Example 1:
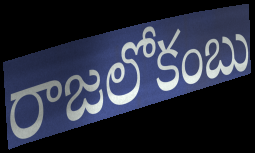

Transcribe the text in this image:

రాజలోకంబు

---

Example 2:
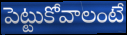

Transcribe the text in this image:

పెట్టుకోవాలంటే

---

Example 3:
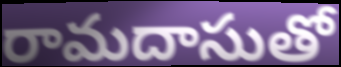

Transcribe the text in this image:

రామదాసుతో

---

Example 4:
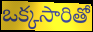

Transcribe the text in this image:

ఒక్కసారితో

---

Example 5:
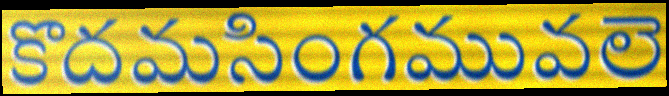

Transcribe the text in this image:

కొదమసింగమువలె